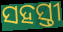
ସହସ୍ତୀ